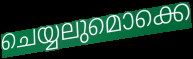
ചെയ്യലുമൊക്കെ